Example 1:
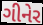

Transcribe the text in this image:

ગીનેર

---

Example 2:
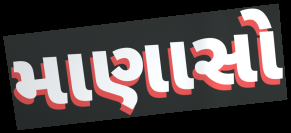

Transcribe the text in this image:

માણાસો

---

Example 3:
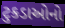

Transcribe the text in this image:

ટુકડાઓનો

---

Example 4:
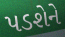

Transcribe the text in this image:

પડશેને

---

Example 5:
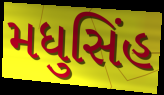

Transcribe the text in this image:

મધુસિંહ